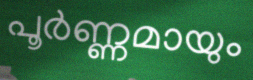
പൂർണ്ണമായും